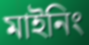
মাইনিং